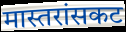
मास्तरांसकट